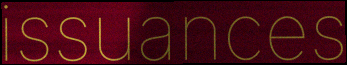
issuances